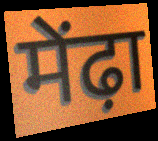
मेंढ़ा